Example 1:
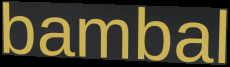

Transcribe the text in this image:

bambal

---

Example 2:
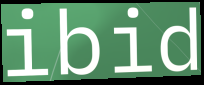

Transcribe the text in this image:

ibid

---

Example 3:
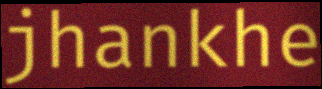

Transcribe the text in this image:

jhankhe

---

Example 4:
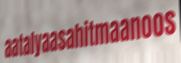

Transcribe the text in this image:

aatalyaasahitmaanoos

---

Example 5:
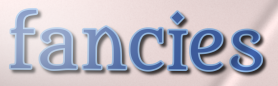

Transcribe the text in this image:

fancies